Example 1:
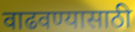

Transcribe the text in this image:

वाढवण्यासाठी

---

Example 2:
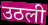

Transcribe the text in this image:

उठली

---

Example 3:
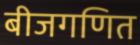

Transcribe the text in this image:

बीजगणित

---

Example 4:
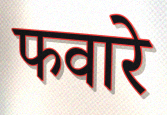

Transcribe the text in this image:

फवारे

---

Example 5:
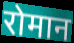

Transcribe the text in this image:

रोमान